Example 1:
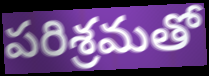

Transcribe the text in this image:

పరిశ్రమతో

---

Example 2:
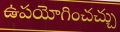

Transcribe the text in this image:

ఉపయోగించచ్చు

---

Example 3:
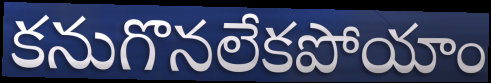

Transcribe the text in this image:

కనుగొనలేకపోయాం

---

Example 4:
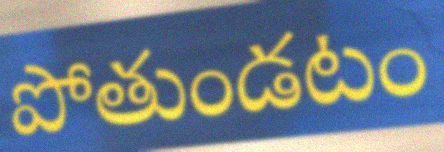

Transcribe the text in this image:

పోతుండటం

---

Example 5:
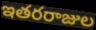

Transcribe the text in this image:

ఇతరరాజుల